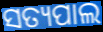
ସତ୍ୟପାଲ